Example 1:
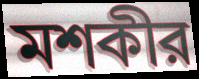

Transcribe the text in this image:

মশকীর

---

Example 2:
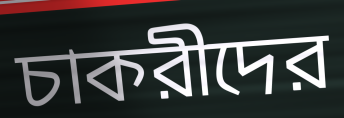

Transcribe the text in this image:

চাকরীদের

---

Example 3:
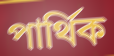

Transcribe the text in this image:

পার্থিক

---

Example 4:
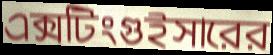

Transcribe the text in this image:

এক্সটিংগুইসারের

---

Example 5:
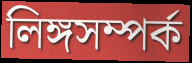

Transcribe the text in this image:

লিঙ্গসম্পর্ক